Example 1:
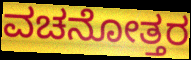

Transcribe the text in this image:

ವಚನೋತ್ತರ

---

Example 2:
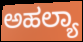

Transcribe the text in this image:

ಅಹಲ್ಯಾ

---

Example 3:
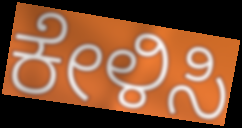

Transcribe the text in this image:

ಕೇಳಿಸಿ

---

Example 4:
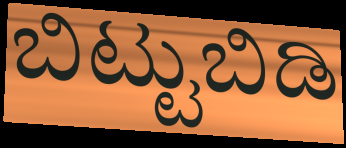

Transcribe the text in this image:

ಬಿಟ್ಟುಬಿಡಿ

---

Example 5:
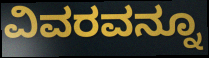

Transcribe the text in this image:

ವಿವರವನ್ನೂ